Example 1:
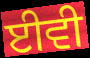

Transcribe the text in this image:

ਈਵੀ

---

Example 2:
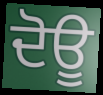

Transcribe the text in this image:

ਦੋਊ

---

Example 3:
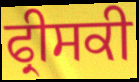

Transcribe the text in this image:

ਫ੍ਰੀਸਕੀ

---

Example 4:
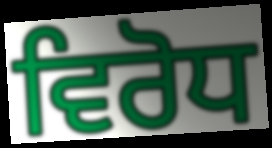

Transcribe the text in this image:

ਵਿਰੋਧ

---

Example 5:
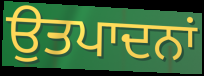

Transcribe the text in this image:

ਉਤਪਾਦਨਾਂ